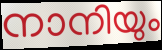
നാനിയും